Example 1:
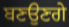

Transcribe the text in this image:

ਬਣਉਣਗੇ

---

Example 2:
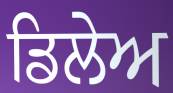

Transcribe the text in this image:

ਡਿਲੇਅ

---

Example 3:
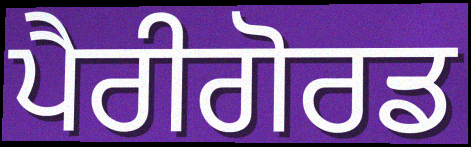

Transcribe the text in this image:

ਪੈਰੀਗੋਰਡ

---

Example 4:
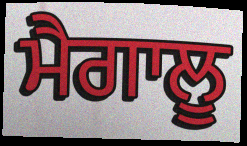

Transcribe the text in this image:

ਮੈਗਾਲੂ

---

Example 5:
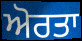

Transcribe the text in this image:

ਅੋਰਤਾ